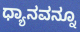
ಧ್ಯಾನವನ್ನೂ